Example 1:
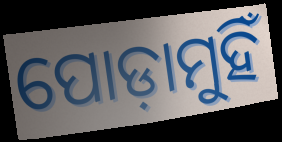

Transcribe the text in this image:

ପୋଡ଼ାମୁହିଁ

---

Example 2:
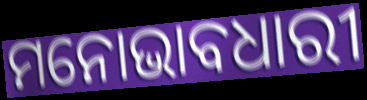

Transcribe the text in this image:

ମନୋଭାବଧାରୀ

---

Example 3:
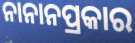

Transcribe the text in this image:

ନାନାନପ୍ରକାର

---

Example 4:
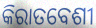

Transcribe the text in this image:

କିରାତବେଶୀ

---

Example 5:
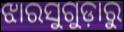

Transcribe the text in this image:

ଝାରସୁଗୁଡ଼ାରୁ